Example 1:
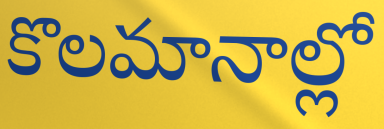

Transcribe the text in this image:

కొలమానాల్లో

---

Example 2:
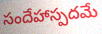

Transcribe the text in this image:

సందేహాస్పదమే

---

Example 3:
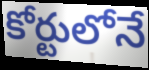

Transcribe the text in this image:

కోర్టులోనే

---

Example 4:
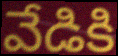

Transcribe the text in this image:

వేడికి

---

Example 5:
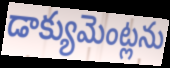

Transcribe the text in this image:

డాక్యుమెంట్లను